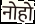
नोहो